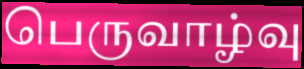
பெருவாழ்வு